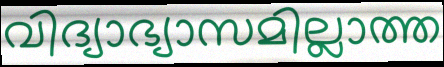
വിദ്യാഭ്യാസമില്ലാത്ത